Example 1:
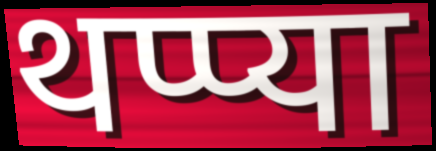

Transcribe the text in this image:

थप्प्या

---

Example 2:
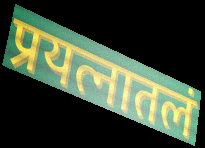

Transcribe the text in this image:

प्रयत्नातलं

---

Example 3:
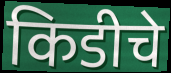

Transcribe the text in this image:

किडीचे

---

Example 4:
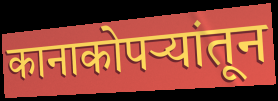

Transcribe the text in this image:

कानाकोपर्‍यांतून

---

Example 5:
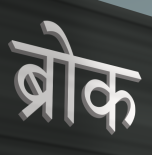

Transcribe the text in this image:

ब्रोक